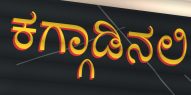
ಕಗ್ಗಾಡಿನಲಿ